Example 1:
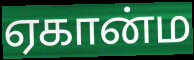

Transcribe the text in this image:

ஏகான்ம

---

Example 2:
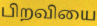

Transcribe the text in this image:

பிறவியை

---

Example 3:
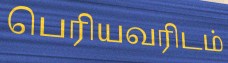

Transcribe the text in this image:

பெரியவரிடம்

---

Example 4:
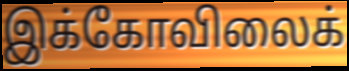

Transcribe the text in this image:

இக்கோவிலைக்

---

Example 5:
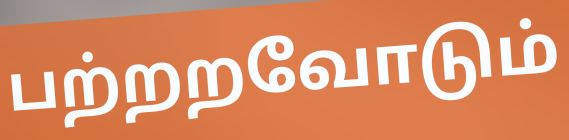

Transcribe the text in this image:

பற்றறவோடும்